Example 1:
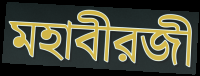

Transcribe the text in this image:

মহাবীরজী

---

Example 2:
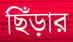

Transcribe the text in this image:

ছিঁড়ার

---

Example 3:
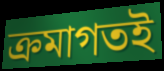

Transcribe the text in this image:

ক্রমাগতই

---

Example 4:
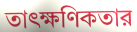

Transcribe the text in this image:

তাৎক্ষণিকতার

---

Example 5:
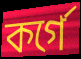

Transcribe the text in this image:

কর্গে